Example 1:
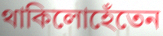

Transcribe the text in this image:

থাকিলোহেঁতেন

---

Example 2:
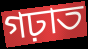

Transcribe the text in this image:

গঢ়াত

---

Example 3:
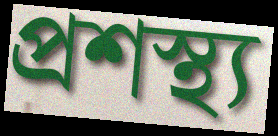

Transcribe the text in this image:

প্ৰশস্থ্য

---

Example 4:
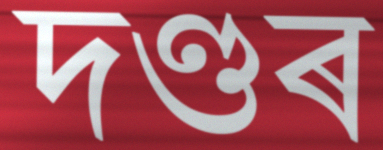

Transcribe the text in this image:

দণ্ডৰ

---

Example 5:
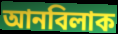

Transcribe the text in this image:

আনবিলাক